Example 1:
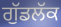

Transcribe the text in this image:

ਗੁੱਡਲੱਕ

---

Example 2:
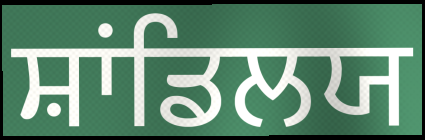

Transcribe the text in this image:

ਸ਼ਾਂਡਿਲਯ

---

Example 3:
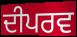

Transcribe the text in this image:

ਦੀਪਰਵ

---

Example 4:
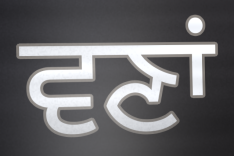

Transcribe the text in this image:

ਵਣਾਂ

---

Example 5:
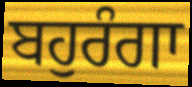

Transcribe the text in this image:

ਬਹੁਰੰਗਾ